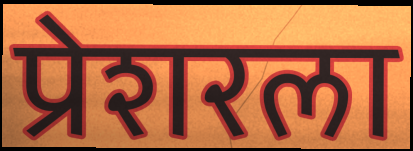
प्रेशरला